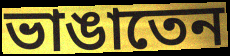
ভাঙাতেন